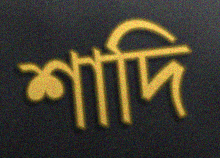
শাদি